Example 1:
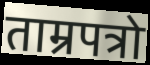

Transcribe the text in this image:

ताम्रपत्रो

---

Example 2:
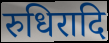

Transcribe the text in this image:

रुधिरादि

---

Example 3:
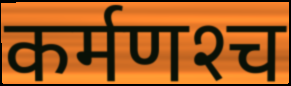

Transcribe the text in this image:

कर्मणश्च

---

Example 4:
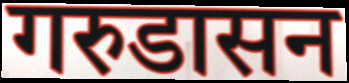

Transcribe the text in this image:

गरुडासन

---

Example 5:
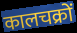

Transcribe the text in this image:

कालचक्रों